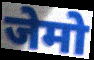
जेमो